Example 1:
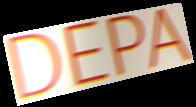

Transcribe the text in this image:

DEPA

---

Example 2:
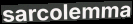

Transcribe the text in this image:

sarcolemma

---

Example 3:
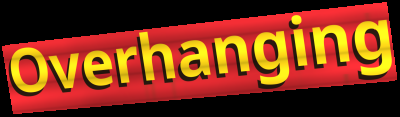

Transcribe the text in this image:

Overhanging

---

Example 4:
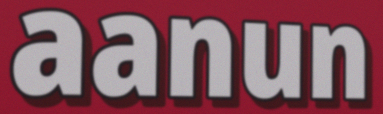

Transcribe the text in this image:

aanun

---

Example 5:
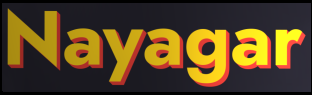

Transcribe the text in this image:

Nayagar